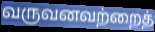
வருவனவற்றைத்